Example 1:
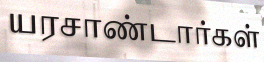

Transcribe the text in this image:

யரசாண்டார்கள்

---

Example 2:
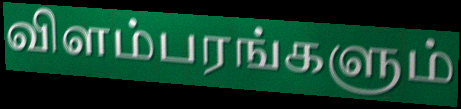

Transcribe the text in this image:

விளம்பரங்களும்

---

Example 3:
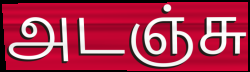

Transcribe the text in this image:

அடஞ்சு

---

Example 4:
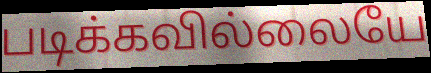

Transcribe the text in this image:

படிக்கவில்லையே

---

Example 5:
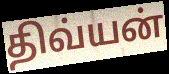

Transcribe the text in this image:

திவ்யன்